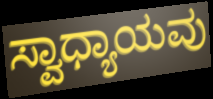
ಸ್ವಾಧ್ಯಾಯವು